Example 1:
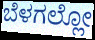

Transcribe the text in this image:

ಬೆಳಗಲ್ಲೋ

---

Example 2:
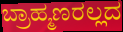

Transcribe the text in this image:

ಬ್ರಾಹ್ಮಣರಲ್ಲದ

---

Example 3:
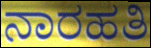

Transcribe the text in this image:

ನಾರಹತಿ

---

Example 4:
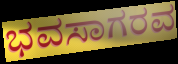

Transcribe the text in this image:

ಭವಸಾಗರವ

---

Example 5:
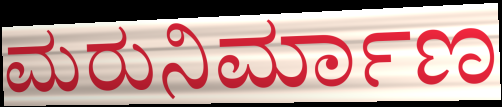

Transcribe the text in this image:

ಮರುನಿರ್ಮಾಣ